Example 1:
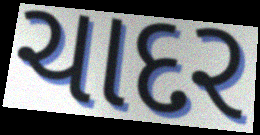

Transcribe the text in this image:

ચાદર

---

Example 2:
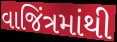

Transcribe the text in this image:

વાજિંત્રમાંથી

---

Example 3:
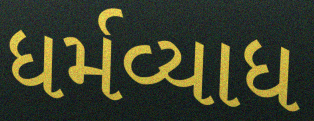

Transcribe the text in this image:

ધર્મવ્યાધ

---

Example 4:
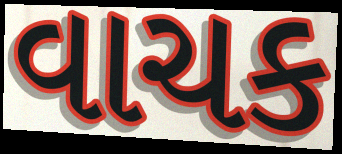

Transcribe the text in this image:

વાચક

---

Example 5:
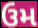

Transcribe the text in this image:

ઉમ